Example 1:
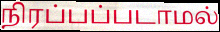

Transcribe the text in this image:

நிரப்பப்படாமல்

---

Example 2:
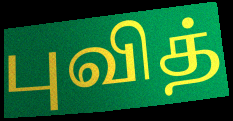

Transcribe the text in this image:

புவித்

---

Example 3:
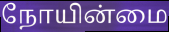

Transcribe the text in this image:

நோயின்மை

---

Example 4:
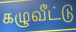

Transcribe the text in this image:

கழுவீட்டு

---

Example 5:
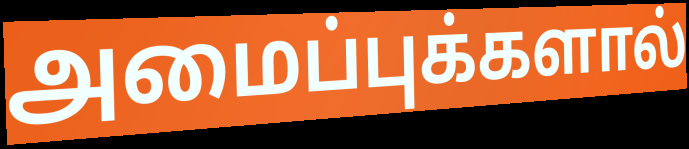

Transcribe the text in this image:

அமைப்புக்களால்